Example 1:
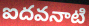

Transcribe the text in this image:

ఐదవనాటి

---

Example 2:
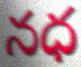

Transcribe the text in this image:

నధ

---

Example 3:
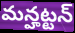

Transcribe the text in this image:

మన్హట్టన్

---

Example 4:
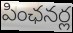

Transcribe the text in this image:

పింఛనర్ల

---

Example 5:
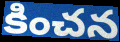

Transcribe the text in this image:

కించన